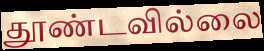
தூண்டவில்லை